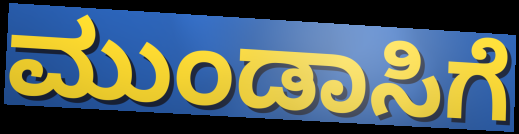
ಮುಂಡಾಸಿಗೆ